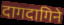
दागदागिने